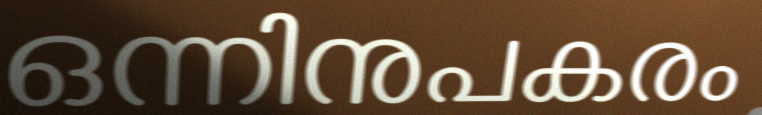
ഒന്നിനുപകരം